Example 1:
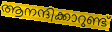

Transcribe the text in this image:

ആനന്ദിക്കാറുണ്ട്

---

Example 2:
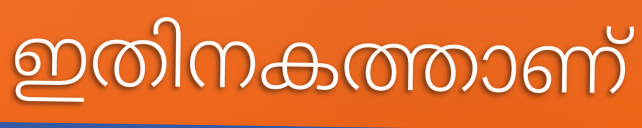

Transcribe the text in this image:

ഇതിനകത്താണ്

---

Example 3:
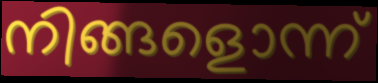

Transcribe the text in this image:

നിങ്ങളൊന്ന്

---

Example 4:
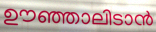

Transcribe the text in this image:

ഊഞ്ഞാലിടാൻ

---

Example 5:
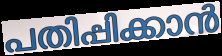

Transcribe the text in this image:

പതിപ്പിക്കാൻ